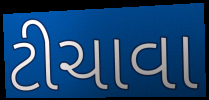
ટીચાવા